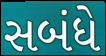
સબંધે